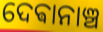
ଦେଵାନାଞ୍ଚ